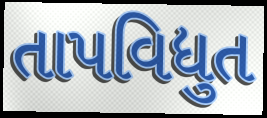
તાપવિદ્યુત